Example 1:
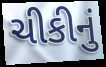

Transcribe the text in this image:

ચીકીનું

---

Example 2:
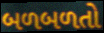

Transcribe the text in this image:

બળબળતો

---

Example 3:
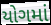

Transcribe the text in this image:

યોગમાં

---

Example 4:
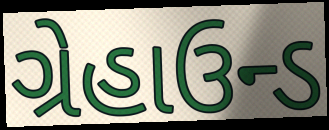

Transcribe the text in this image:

ગ્રેહાઉન્ડ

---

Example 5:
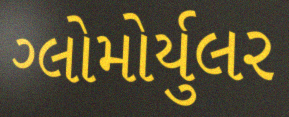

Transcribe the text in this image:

ગ્લોમોર્યુલર